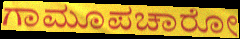
ಗಾಮೂಪಚಾರೋ